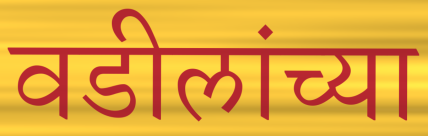
वडीलांच्या